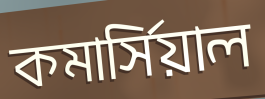
কমার্সিয়াল